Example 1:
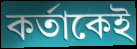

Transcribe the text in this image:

কর্তাকেই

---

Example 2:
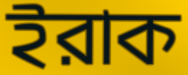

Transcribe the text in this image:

ইরাক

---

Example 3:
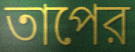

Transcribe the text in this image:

তাপের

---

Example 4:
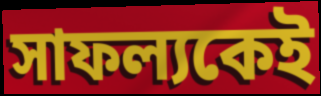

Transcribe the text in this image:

সাফল্যকেই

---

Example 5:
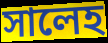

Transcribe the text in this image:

সালেহ